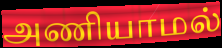
அணியாமல்